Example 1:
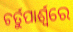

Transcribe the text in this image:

ଚର୍ତୁପାର୍ଶ୍ବରେ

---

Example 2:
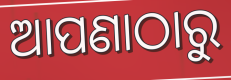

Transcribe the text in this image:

ଆପଣାଠାରୁ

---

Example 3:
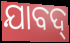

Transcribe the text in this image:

ଯାବଦ୍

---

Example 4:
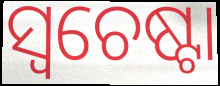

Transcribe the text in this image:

ସ୍ଵଚେଷ୍ଟା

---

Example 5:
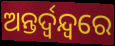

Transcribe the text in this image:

ଅନ୍ତର୍ଦ୍ୱନ୍ଦ୍ୱରେ